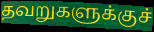
தவறுகளுக்குச்